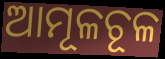
ଆମୂଳଚୂଳ